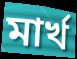
মার্খ